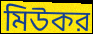
মিউকর